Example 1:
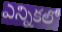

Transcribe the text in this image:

ఎన్నికలో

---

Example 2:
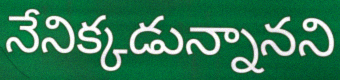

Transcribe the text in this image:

నేనిక్కడున్నానని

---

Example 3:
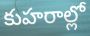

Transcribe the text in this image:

కుహరాల్లో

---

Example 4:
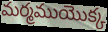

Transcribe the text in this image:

మర్మముయొక్క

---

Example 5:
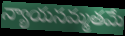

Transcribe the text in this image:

న్యాయసమ్మతమే